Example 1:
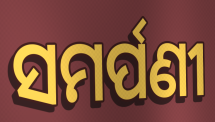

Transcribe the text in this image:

ସମର୍ପଣୀ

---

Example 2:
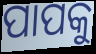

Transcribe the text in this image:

ପାପକୁ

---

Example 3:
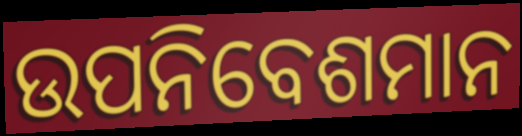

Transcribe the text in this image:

ଉପନିବେଶମାନ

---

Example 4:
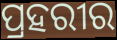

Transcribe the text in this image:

ପ୍ରହରୀର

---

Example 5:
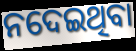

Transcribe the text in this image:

ନଦେଇଥିବା